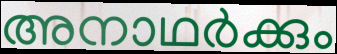
അനാഥർക്കും